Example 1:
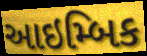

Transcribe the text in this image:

આઇમ્બિક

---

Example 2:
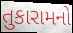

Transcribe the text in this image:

તુકારામનો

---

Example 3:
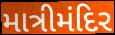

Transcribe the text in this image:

માત્રીમંદિર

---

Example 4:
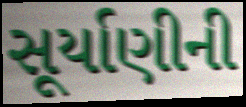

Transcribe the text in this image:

સૂર્યાણીની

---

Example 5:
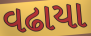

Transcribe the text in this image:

વઢાયા